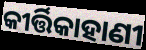
କୀର୍ତ୍ତିକାହାଣୀ